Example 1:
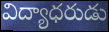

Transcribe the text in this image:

విద్యాధరుడు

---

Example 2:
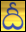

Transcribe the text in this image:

దీ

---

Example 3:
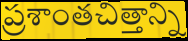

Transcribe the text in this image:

ప్రశాంతచిత్తాన్ని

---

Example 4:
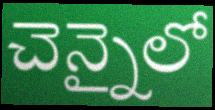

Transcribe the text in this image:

చెన్నైలో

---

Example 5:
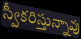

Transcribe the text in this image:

స్వీకరిస్తున్నావు